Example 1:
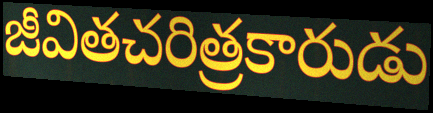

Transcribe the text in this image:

జీవితచరిత్రకారుడు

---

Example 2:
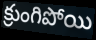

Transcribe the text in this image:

క్రుంగిపోయి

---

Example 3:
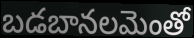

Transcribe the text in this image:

బడబానలమెంతో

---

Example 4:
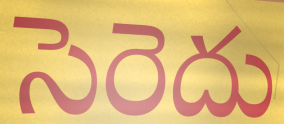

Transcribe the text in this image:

సెరెదు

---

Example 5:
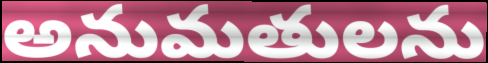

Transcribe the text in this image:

అనుమతులను